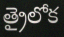
త్రైలోక